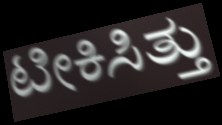
ಟೀಕಿಸಿತ್ತು